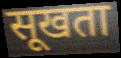
सूखता